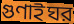
গুণাইঘর